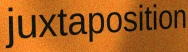
juxtaposition